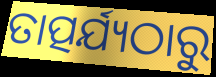
ତାତ୍ପର୍ଯ୍ୟଠାରୁ